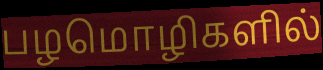
பழமொழிகளில்